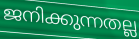
ജനിക്കുന്നതല്ല